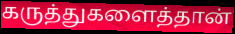
கருத்துகளைத்தான்